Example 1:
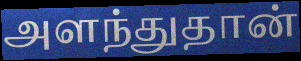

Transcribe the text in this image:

அளந்துதான்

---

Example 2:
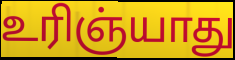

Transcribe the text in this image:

உரிஞ்யாது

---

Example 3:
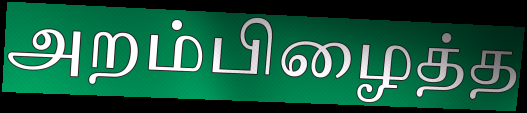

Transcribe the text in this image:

அறம்பிழைத்த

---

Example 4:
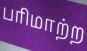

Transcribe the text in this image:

பரிமாற்ற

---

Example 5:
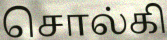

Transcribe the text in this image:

சொல்கி